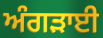
ਅੰਗੜਾਈ